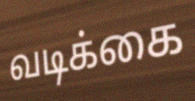
வடிக்கை